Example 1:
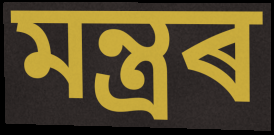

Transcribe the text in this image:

মন্ত্ৰৰ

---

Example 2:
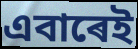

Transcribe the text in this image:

এবাৰেই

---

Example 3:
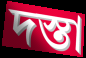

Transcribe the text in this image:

দস্তা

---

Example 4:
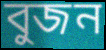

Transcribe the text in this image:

বুজন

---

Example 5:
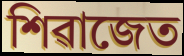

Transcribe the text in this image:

শিৱাজেত